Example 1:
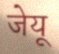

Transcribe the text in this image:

जेयू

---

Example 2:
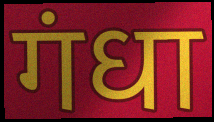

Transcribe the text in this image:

गंधा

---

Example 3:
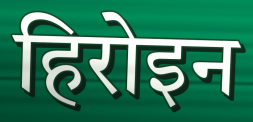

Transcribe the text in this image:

हिरोइन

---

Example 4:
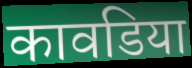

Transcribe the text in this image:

कावडिया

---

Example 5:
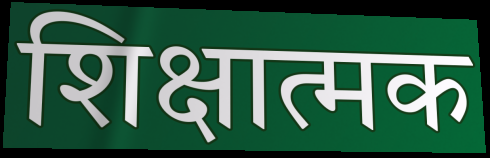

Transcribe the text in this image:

शिक्षात्मक